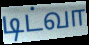
டிட்வா